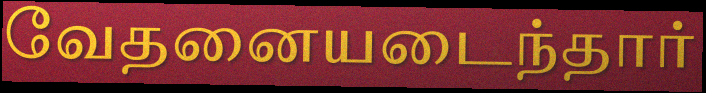
வேதனையடைந்தார்